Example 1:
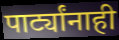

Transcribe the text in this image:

पार्ट्यांनाही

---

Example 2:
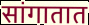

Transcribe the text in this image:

सांगातात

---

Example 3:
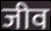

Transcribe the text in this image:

जीव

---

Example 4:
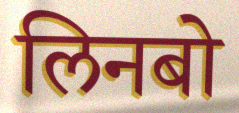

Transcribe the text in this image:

लिनबो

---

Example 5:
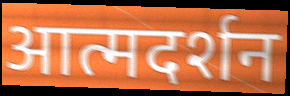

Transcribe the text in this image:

आत्मदर्शन